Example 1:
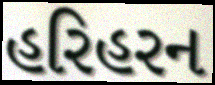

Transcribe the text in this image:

હરિહરન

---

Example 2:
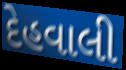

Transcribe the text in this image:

દેહવાલી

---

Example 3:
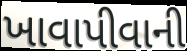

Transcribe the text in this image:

ખાવાપીવાની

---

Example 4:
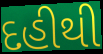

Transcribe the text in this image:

દહીથી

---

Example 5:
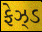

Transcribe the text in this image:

ફેઝ્ડ